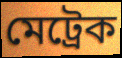
মেট্রেক